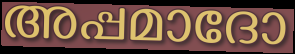
അപ്പമാദോ